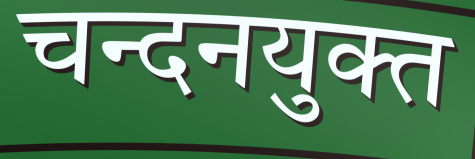
चन्दनयुक्त